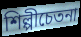
শিল্পীচেতনা